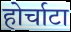
होर्चाटा